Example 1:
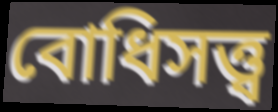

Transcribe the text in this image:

বোধিসত্ত্ব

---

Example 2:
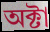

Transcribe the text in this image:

অক্টা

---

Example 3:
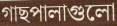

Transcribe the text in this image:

গাছপালাগুলো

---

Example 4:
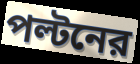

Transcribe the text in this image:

পল্টনের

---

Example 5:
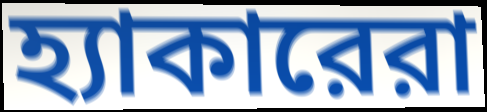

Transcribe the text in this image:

হ্যাকারেরা